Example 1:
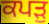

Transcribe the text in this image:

ਕਪੜੁ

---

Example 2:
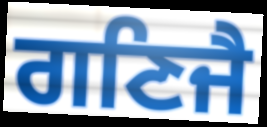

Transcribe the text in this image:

ਗਣਿਜੈ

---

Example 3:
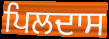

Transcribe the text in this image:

ਪਿਲਦਾਸ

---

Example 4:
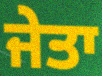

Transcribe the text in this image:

ਜੇਤਾ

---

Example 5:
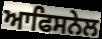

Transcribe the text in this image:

ਆਫਿਸਨੇਲ